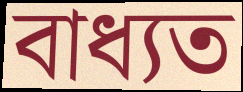
বাধ্যত